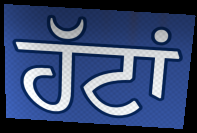
ਹੱਟਾਂ